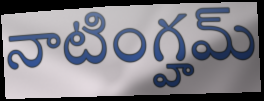
నాటింగ్హమ్